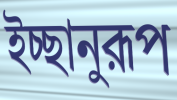
ইচ্ছানুরূপ